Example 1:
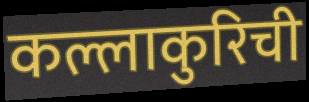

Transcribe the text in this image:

कल्लाकुरिची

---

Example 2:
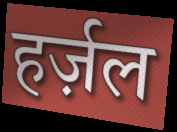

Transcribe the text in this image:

हर्ज़ल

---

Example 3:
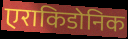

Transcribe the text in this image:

एराकिडोनिक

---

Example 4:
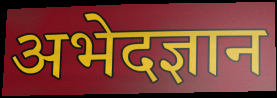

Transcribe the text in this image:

अभेदज्ञान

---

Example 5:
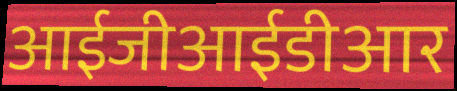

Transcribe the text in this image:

आईजीआईडीआर